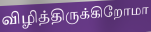
விழித்திருக்கிறோமா